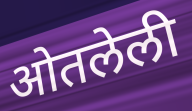
ओतलेली